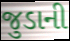
જુડાની